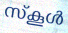
സ്‌കൂൾ